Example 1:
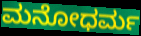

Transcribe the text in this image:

ಮನೋಧರ್ಮ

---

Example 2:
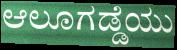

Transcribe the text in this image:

ಆಲೂಗಡ್ಡೆಯು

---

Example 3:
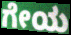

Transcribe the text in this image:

ಗೇಯ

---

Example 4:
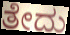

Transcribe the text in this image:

ತೇದು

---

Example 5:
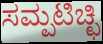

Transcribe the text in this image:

ಸಮ್ಪಟಿಚ್ಛಿ